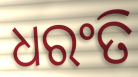
ଧରଂତି